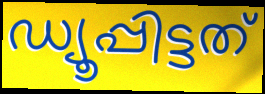
ഡ്യൂപ്പിട്ടത്